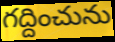
గద్దించును